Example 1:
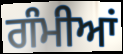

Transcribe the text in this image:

ਗੰਮੀਆਂ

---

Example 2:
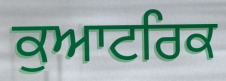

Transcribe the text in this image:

ਕੁਆਟਰਿਕ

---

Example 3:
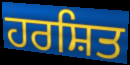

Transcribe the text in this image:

ਹਰਸ਼ਿਤ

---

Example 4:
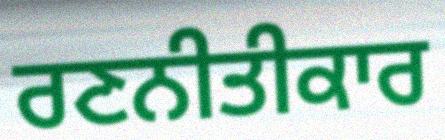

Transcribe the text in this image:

ਰਣਨੀਤੀਕਾਰ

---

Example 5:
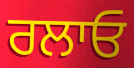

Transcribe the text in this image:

ਰਲਾਓ